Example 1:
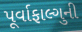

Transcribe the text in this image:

પૂર્વાફાલ્ગુની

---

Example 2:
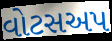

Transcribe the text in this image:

વોટસઅપ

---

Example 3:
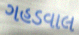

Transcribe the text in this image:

ગહડવાલ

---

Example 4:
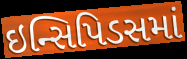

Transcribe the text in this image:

ઇન્સિપિડસમાં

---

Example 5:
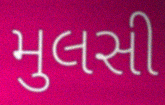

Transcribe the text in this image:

મુલસી